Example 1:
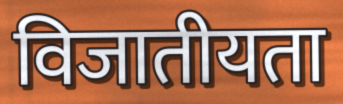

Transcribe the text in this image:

विजातीयता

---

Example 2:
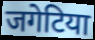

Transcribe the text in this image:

जगेटिया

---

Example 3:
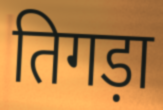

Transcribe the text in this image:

तिगड़ा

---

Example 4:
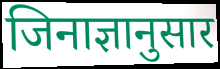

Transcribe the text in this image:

जिनाज्ञानुसार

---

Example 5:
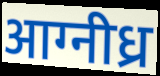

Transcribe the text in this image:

आग्नीध्र